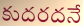
కుదరదనే